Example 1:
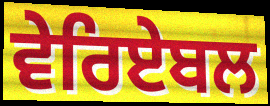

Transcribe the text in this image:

ਵੇਰਿਏਬਲ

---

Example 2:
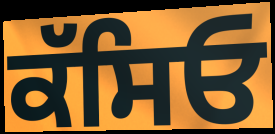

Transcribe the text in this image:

ਕੱਸਿਓ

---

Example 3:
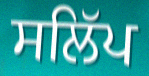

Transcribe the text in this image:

ਸਲਿੱਪ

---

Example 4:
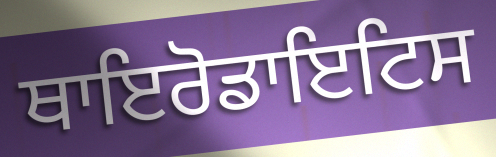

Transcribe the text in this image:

ਥਾਇਰੋਡਾਇਟਿਸ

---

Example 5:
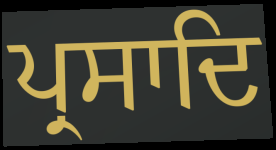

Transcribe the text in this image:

ਪ੍ਰਸਾਦਿ